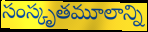
సంస్కృతమూలాన్ని